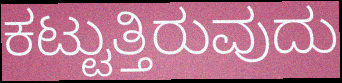
ಕಟ್ಟುತ್ತಿರುವುದು